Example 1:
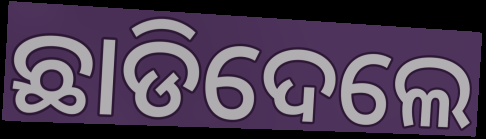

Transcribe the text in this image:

ଛାଡିଦେଲେ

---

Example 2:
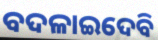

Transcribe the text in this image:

ବଦଳାଇଦେବି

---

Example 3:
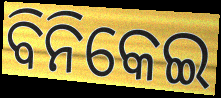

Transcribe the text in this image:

ବିନିକେଇ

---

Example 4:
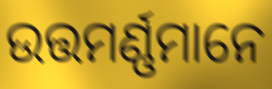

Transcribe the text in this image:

ଉତ୍ତମର୍ଣ୍ଣମାନେ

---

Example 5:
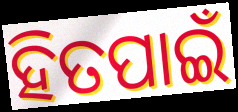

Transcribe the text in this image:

ହିତପାଇଁ